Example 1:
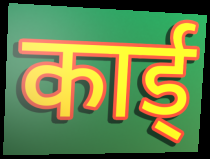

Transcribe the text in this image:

कार्ड्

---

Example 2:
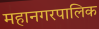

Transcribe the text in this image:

महानगरपालिक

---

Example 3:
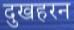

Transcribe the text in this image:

दुखहरन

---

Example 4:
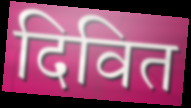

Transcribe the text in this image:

दिवित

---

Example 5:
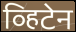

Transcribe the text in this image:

व्हिटेन